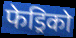
फेड्रिको